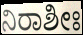
ನಿರಾಶೀಃ